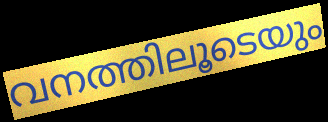
വനത്തിലൂടെയും